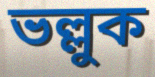
ভল্লুক